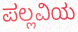
ಪಲ್ಲವಿಯ